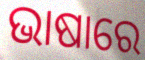
ଭାଷାରେ